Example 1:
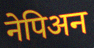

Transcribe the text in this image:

नेपिअन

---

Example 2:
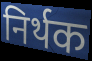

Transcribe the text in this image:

निर्थक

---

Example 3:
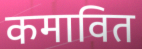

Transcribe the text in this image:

कमावित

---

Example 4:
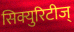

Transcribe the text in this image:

सिक्युरिटीज्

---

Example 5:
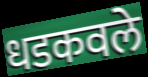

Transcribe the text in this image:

धडकवले